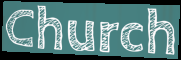
Church